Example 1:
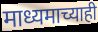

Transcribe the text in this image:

माध्यमाच्याही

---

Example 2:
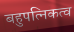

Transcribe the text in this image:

बहुपत्निकत्व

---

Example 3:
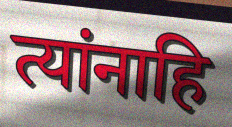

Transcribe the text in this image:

त्यांनाहि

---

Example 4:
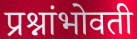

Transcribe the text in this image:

प्रश्नांभोवती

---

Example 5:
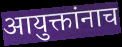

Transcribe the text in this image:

आयुक्तांनाच